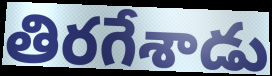
తిరగేశాడు